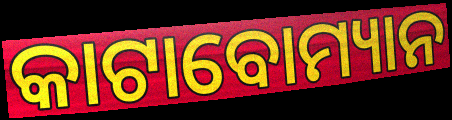
କାଟାବୋମ୍ୟାନ